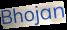
Bhojan